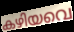
കഴിയവെ